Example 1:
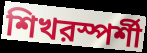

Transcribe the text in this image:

শিখরস্পর্শী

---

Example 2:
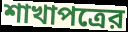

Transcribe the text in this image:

শাখাপত্রের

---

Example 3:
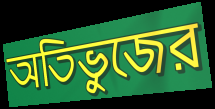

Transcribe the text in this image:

অতিভুজের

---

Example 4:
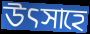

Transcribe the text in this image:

উত্‍সাহে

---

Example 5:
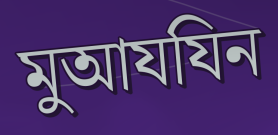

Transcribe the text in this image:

মুআযযিন